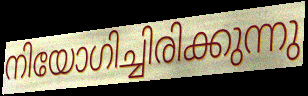
നിയോഗിച്ചിരിക്കുന്നു